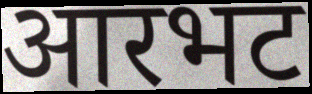
आरभट